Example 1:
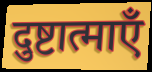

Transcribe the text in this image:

दुष्टात्माएँ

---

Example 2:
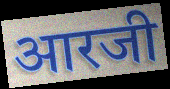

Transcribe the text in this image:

आरजी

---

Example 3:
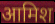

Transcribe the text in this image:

आमिश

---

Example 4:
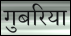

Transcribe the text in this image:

गुबरिया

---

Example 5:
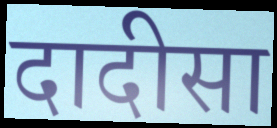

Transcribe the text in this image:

दादीसा